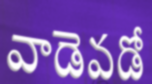
వాడెవడో